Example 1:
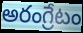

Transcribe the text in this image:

అరంగ్రేటం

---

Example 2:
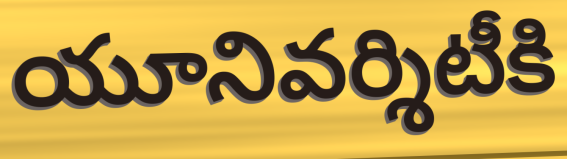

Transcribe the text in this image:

యూనివర్శిటీకి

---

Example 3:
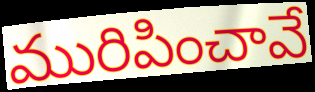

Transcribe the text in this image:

మురిపించావే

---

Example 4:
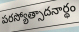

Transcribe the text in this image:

పరస్యోత్సాదనార్థం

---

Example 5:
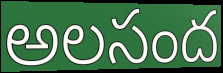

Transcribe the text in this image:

అలసంద